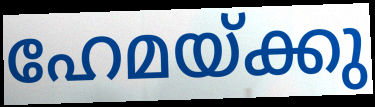
ഹേമയ്ക്കു